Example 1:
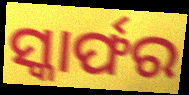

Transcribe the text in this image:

ସ୍କାର୍ଫର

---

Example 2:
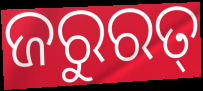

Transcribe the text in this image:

ଜରୁରତ୍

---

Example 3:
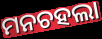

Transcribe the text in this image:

ମନଚହଲା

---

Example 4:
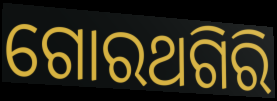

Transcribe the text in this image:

ଗୋରଥଗିରି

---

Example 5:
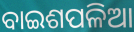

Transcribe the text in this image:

ବାଇଶପଳିଆ